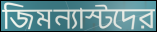
জিমন্যাস্টদের